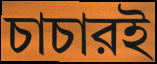
চাচারই